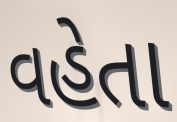
વહેતા